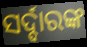
ସର୍ଦ୍ଦାରଙ୍କ